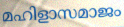
മഹിളാസമാജം